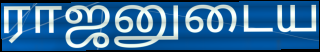
ராஜனுடைய